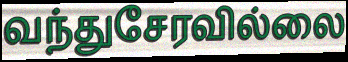
வந்துசேரவில்லை